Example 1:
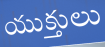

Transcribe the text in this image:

యుక్తులు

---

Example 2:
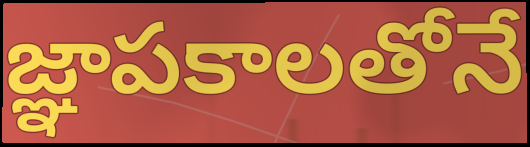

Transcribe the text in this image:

జ్ఞాపకాలతోనే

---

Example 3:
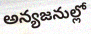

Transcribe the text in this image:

అన్యజనుల్లో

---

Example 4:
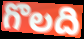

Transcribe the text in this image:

గొలది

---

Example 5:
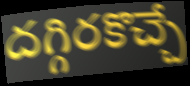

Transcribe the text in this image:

దగ్గిరకొచ్చే